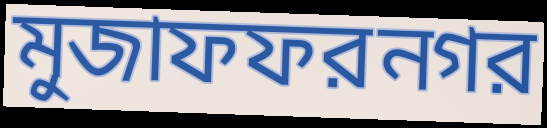
মুজাফফরনগর